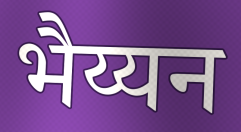
भैय्यन